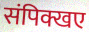
संपिक्खए